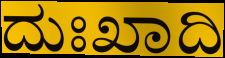
ದುಃಖಾದಿ